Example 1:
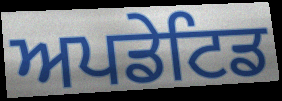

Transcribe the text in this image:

ਅਪਡੇਟਿਡ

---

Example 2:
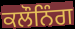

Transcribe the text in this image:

ਕਲੌਨਿੰਗ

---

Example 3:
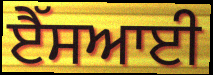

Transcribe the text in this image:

ਏੈੱਸਆਈ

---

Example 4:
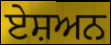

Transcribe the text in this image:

ਏਸ਼ਅਨ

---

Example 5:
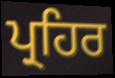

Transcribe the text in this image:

ਪ੍ਰਹਿਰ